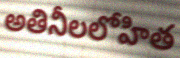
అతినీలలోహిత